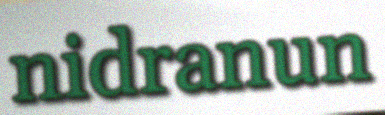
nidranun